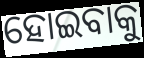
ହୋଇବାକୁ